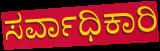
ಸರ್ವಾಧಿಕಾರಿ